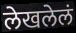
लेखलेलं